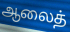
ஆலைத்